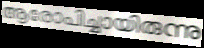
ആരോപിച്ചായിരുന്നു